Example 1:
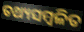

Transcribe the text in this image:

ତଥ୍ୟସମ୍ବଳିତ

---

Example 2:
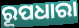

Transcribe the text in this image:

ରୂପଧାରା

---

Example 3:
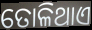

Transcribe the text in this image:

ତୋଳିଥାଏ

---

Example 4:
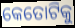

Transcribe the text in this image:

କେତୋଟିକୁ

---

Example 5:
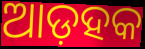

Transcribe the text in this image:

ଆଡ଼ହକ